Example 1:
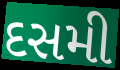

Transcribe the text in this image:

દસમી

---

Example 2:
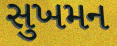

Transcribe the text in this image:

સુખમન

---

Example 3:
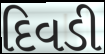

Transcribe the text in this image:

દિવડી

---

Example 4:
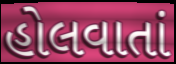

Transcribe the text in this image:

હોલવાતાં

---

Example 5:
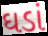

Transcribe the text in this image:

ઘડાં